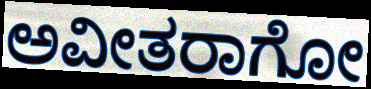
ಅವೀತರಾಗೋ